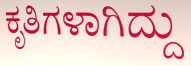
ಕೃತಿಗಳಾಗಿದ್ದು